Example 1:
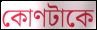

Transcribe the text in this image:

কোণটাকে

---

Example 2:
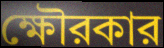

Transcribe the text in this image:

ক্ষৌরকার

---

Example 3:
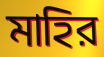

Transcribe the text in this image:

মাহির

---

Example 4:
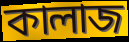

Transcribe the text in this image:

কালাজ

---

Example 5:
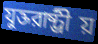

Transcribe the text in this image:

যুক্তরাষ্ট্রীয়